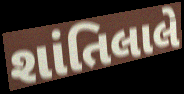
શાંતિલાલે